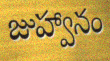
జుహ్వానం